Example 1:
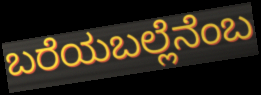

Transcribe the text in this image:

ಬರೆಯಬಲ್ಲೆನೆಂಬ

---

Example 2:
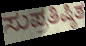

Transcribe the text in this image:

ಸುಪ್ರತಿಷ್ಠಿತ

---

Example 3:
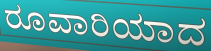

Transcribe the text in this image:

ರೂವಾರಿಯಾದ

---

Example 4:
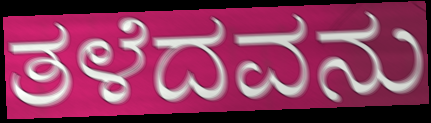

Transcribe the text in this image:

ತಳೆದವನು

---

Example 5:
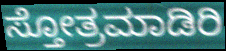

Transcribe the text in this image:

ಸ್ತೋತ್ರಮಾಡಿರಿ